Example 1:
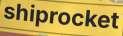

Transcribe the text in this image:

shiprocket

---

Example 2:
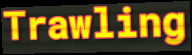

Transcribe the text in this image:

Trawling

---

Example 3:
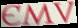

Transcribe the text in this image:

EMV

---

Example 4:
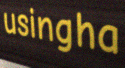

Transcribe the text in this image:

usingha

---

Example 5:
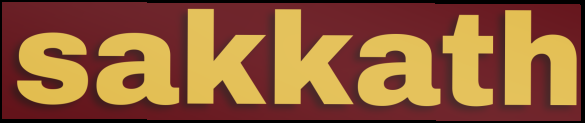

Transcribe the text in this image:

sakkath